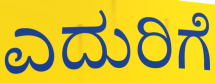
ಎದುರಿಗೆ